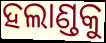
ହଲାଣ୍ଡକୁ